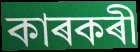
কাৰকৰী